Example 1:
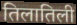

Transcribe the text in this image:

तिलातिली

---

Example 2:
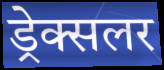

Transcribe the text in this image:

ड्रेक्सलर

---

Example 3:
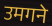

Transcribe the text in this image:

उमगने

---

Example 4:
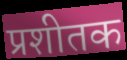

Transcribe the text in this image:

प्रशीतक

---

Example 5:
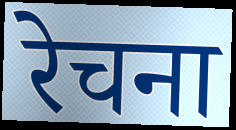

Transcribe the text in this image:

रेचना